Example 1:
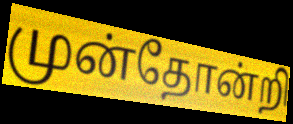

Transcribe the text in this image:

முன்தோன்றி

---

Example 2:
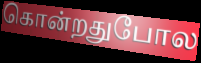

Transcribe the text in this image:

கொன்றதுபோல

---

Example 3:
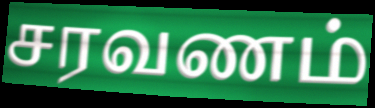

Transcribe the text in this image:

சரவணம்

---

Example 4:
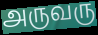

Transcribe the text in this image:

அருவரு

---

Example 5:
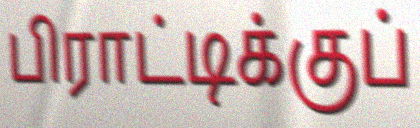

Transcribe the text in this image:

பிராட்டிக்குப்